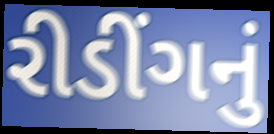
રીડીંગનું